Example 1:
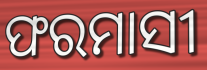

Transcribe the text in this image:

ଫରମାସୀ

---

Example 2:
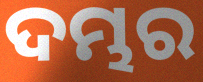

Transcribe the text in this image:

ଦମ୍ଭର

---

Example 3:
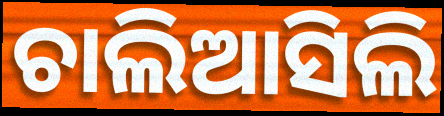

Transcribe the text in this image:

ଚାଲିଆସିଲି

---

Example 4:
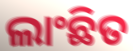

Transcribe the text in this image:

ଲାଂଛିତ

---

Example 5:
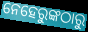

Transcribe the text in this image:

ନେହେରୁଙ୍କଠାରୁ